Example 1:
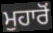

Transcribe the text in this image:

ਮੁਹਾਰੋਂ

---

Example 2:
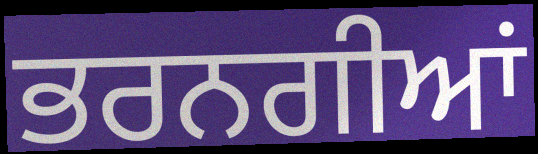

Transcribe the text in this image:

ਭਰਨਗੀਆਂ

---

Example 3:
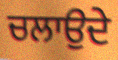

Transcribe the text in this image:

ਚਲਾਉਦੇ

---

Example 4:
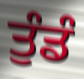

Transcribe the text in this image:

ਤੁੰਡੰ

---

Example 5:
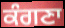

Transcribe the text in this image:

ਕੰਗਣਾ